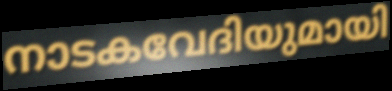
നാടകവേദിയുമായി